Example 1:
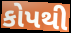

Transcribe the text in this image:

કોપથી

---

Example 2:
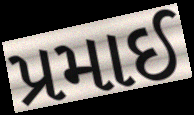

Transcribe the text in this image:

પ્રમાઈ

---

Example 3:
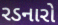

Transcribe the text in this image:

રડનારો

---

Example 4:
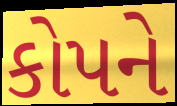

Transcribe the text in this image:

કોપને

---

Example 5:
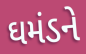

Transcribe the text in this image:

ઘમંડને